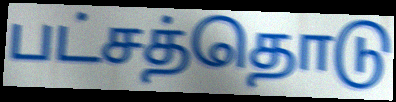
பட்சத்தொடு